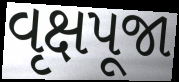
વૃક્ષપૂજા